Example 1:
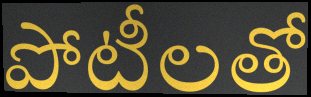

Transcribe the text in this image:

పోటీలతో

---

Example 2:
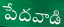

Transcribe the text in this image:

పేదవాడి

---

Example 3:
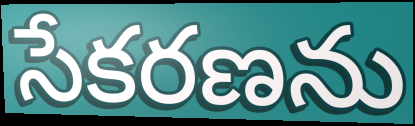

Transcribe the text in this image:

సేకరణను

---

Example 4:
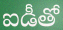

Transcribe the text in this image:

ఐడీతో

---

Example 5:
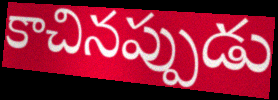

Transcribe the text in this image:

కాచినప్పుడు